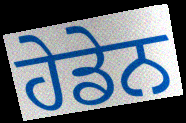
ਹੇਡੇਨ